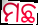
ମଛ